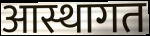
आस्थागत